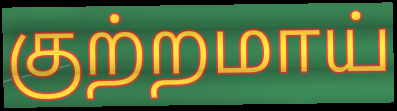
குற்றமாய்